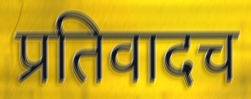
प्रतिवादच